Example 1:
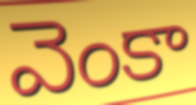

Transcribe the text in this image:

వెంకా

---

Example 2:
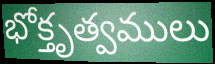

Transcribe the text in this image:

భోక్తృత్వములు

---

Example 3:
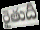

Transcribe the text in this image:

రైతుదీ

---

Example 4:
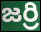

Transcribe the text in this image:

జర్రి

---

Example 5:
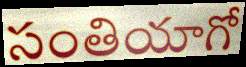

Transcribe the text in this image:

సంతియాగో